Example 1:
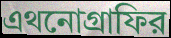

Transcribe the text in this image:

এথনোগ্রাফির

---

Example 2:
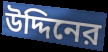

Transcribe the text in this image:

উদ্দিনের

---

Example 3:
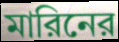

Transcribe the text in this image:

মারিনের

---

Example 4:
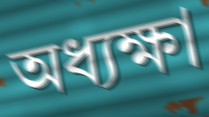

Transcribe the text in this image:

অধ্যক্ষা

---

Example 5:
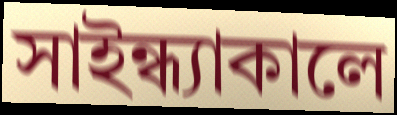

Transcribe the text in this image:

সাইন্ধ্যাকালে